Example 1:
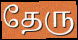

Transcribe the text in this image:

தேரு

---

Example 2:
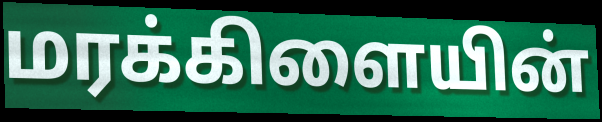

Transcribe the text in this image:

மரக்கிளையின்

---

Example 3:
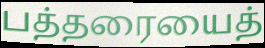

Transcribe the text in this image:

பத்தரையைத்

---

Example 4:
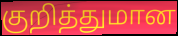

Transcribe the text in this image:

குறித்துமான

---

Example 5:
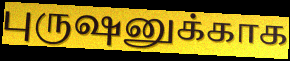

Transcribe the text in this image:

புருஷனுக்காக